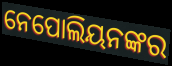
ନେପୋଲିୟନଙ୍କର